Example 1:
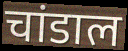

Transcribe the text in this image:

चांडाल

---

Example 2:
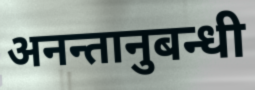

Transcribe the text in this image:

अनन्तानुबन्धी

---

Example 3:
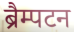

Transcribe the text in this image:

ब्रैम्पटन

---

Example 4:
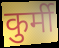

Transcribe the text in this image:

कुर्मी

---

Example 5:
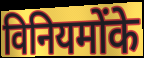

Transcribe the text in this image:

विनियमोंके